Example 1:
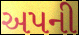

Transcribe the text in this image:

અપની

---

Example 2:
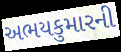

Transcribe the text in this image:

અભયકુમારની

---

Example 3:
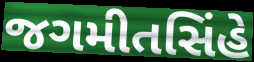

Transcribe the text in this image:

જગમીતસિંહે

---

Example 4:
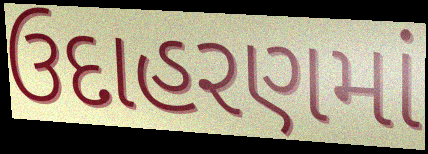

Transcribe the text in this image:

ઉદાહરણમાં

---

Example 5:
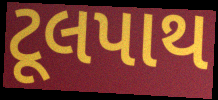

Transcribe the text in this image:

ટૂલપાથ